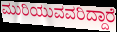
ಮುರಿಯುವವರಿದ್ದಾರೆ